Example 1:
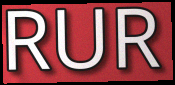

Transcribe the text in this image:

RUR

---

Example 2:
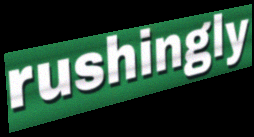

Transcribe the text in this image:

rushingly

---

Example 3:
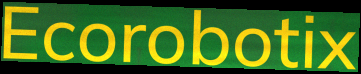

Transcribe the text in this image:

Ecorobotix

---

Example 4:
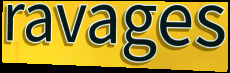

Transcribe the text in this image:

ravages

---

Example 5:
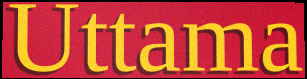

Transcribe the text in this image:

Uttama